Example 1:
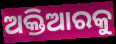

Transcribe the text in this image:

ଅକ୍ତିଆରକୁ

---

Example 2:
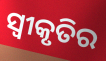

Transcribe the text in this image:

ସ୍ଵୀକୃତିର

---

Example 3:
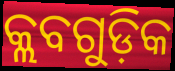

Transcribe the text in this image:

କ୍ଲବଗୁଡ଼ିକ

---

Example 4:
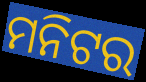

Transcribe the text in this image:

ମନିଟର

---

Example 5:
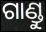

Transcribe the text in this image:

ଗାଣ୍ଡୁ